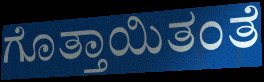
ಗೊತ್ತಾಯಿತಂತೆ